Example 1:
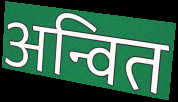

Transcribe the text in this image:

अन्वित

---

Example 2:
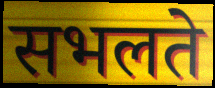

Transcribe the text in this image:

सभलते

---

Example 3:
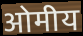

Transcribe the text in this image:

ओमीय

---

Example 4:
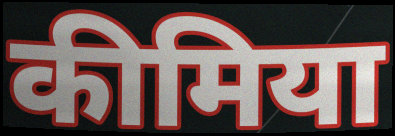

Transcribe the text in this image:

कीमिया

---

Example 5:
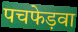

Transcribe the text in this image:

पचफेड़वा